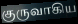
குருவாகிய